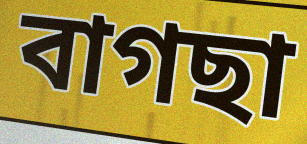
বাগছা